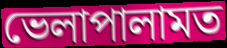
ভেলাপালামত